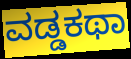
ವಡ್ಡಕಥಾ